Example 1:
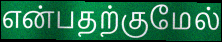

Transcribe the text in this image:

என்பதற்குமேல்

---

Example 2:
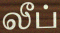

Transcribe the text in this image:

லீப்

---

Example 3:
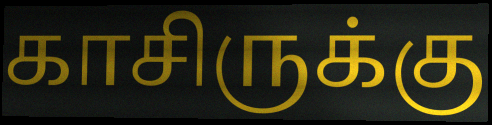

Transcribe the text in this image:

காசிருக்கு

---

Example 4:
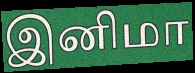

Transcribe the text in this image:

இனிமா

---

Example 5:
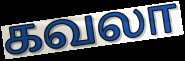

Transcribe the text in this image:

கவலா